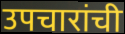
उपचारांची